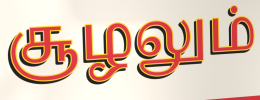
சூழலும்